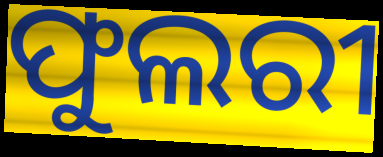
ଫୁଲରୀ